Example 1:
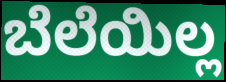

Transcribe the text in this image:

ಬೆಲೆಯಿಲ್ಲ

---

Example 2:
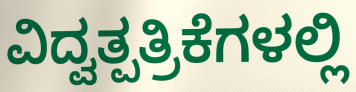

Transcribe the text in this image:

ವಿದ್ವತ್ಪತ್ರಿಕೆಗಳಲ್ಲಿ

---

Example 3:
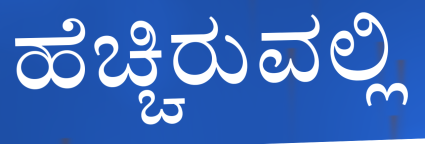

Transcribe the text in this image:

ಹೆಚ್ಚಿರುವಲ್ಲಿ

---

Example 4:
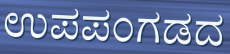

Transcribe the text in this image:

ಉಪಪಂಗಡದ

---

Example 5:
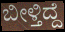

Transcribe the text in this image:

ಬೀಳ್ತಿದ್ದೆ